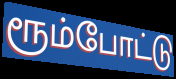
ரூம்போட்டு